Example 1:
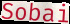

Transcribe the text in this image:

Sobai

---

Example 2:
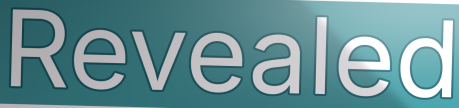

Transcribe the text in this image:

Revealed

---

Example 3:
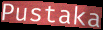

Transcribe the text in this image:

Pustaka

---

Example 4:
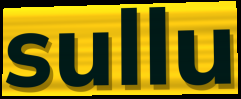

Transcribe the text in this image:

sullu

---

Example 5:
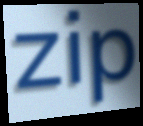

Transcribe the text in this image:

zip